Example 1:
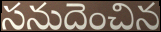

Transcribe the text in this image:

సనుదెంచిన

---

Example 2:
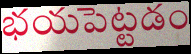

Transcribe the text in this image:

భయపెట్టడం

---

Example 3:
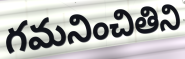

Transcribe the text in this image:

గమనించితిని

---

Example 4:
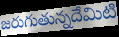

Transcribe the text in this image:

జరుగుతున్నదేమిటి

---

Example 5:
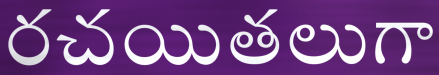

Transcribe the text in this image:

రచయితలుగా